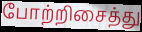
போற்றிசைத்து